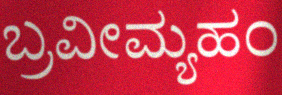
ಬ್ರವೀಮ್ಯಹಂ